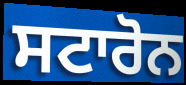
ਸਟਾਰੋਨ